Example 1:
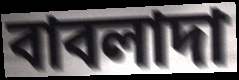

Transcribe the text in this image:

বাবলাদা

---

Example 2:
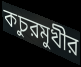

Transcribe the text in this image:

কচুরমুখীর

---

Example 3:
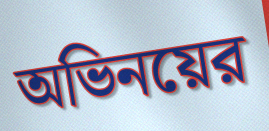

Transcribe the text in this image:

অভিনয়ের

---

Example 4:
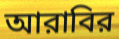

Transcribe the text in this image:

আরাবির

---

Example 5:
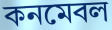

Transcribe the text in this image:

কনমেবল